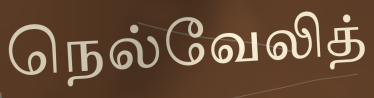
நெல்வேலித்